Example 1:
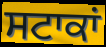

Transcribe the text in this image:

ਸਟਾਕਾਂ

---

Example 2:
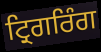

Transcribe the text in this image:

ਟ੍ਰਿਗਰਿੰਗ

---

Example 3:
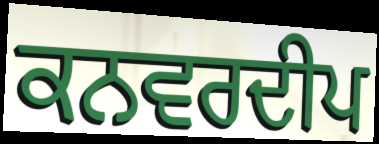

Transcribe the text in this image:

ਕਨਵਰਦੀਪ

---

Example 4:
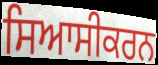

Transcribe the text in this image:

ਸਿਆਸੀਕਰਨ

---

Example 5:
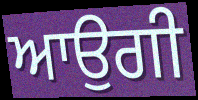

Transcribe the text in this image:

ਆਉਗੀ